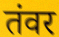
तंवर